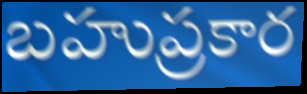
బహుప్రకార